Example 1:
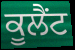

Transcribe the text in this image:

ਕੂਲੈਂਟ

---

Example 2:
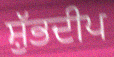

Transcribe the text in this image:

ਸ਼ੁੱਭਦੀਪ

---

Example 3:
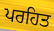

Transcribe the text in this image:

ਪਰਹਿਤ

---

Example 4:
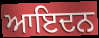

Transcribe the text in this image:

ਆਇਦਨ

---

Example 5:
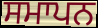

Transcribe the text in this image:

ਸਮਾਪਨ